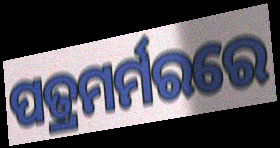
ପତ୍ରମର୍ମରରେ